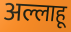
अल्लाहू